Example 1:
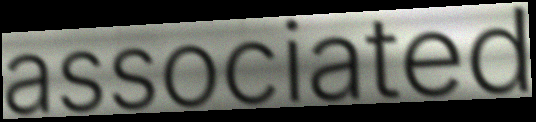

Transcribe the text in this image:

associated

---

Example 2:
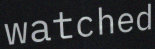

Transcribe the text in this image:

watched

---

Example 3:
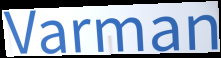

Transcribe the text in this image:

Varman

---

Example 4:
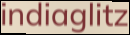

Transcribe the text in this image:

indiaglitz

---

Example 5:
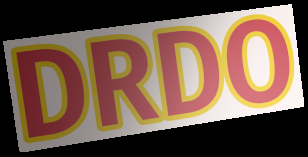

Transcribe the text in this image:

DRDO